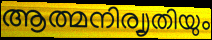
ആത്മനിര്വൃതിയും